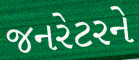
જનરેટરને